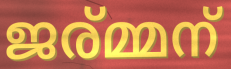
ജര്മ്മന്